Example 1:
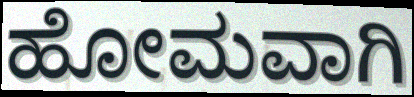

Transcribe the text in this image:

ಹೋಮವಾಗಿ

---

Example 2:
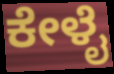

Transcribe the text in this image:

ಕೇಳೈ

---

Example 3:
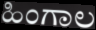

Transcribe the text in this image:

ಹಿಂಗಾಲ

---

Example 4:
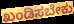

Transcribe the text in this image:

ಖಂಡಿಸಬೇಕು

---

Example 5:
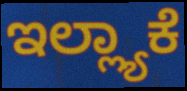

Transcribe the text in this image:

ಇಲ್ಲ್ಯಾಕೆ